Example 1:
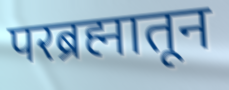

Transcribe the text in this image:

परब्रह्मातून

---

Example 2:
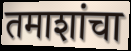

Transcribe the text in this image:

तमाशांचा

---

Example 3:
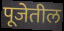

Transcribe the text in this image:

पूजेतील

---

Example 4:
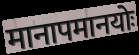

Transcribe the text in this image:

मानापमानयोः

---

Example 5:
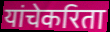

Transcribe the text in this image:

यांचेकरिता